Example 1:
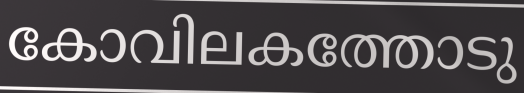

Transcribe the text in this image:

കോവിലകത്തോടു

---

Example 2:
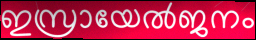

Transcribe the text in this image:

ഇസ്രായേൽജനം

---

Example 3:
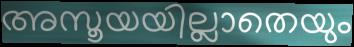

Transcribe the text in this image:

അസൂയയില്ലാതെയും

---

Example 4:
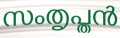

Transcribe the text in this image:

സംതൃപ്തൻ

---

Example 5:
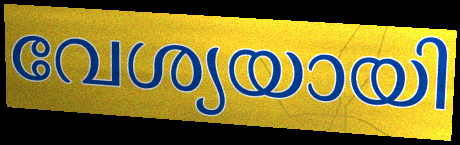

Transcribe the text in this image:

വേശ്യയായി